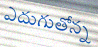
ఎదుగుతోన్న